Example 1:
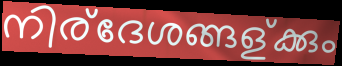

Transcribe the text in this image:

നിര്ദേശങ്ങള്ക്കും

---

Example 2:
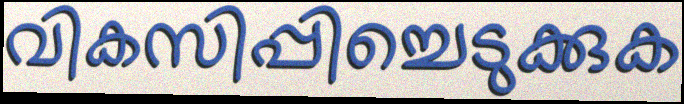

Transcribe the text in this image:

വികസിപ്പിച്ചെടുക്കുക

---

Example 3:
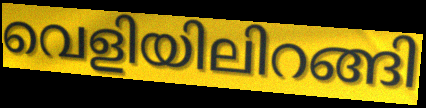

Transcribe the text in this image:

വെളിയിലിറങ്ങി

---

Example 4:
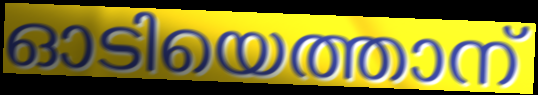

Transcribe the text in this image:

ഓടിയെത്താന്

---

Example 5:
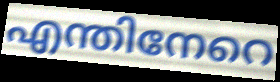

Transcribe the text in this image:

എന്തിനേറെ